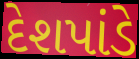
દેશપાંડે